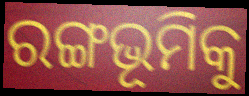
ରଙ୍ଗଭୂମିକୁ